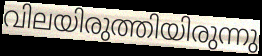
വിലയിരുത്തിയിരുന്നു